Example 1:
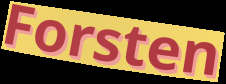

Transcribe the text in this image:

Forsten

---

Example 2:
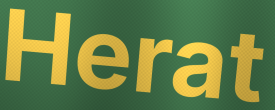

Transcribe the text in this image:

Herat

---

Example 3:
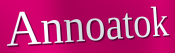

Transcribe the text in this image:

Annoatok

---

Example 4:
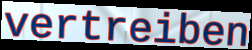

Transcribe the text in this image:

vertreiben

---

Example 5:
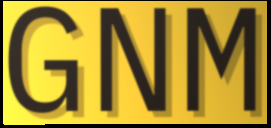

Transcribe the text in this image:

GNM